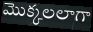
మొక్కలలాగా